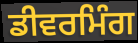
ਡੀਵਰਮਿੰਗ